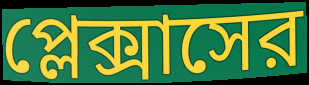
প্লেক্সাসের